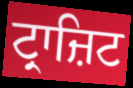
ਟ੍ਰਾਜ਼ਿਟ